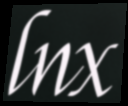
lnx